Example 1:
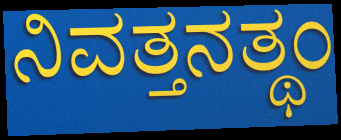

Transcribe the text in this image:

ನಿವತ್ತನತ್ಥಂ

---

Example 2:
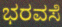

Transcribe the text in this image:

ಭರವಸೆ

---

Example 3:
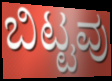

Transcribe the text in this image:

ಬಿಟ್ಟವು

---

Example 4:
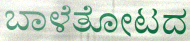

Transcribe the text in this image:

ಬಾಳೆತೋಟದ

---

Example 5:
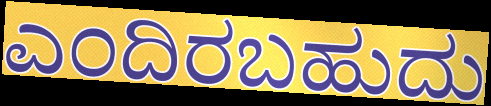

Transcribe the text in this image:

ಎಂದಿರಬಹುದು